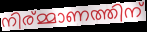
നിര്മ്മാണത്തിന്